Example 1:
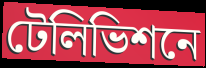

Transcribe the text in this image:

টেলিভিশনে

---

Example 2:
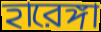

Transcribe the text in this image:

হারেঙ্গা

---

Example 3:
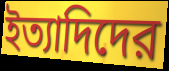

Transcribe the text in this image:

ইত্যাদিদের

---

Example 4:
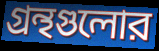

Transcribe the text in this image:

গ্রন্থগুলোর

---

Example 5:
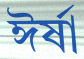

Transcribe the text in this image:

ঈর্ষা